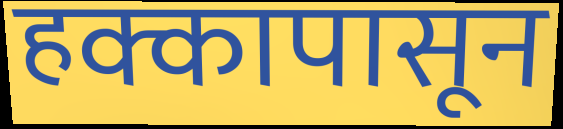
हक्कापासून